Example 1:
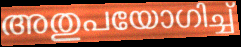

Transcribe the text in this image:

അതുപയോഗിച്ച്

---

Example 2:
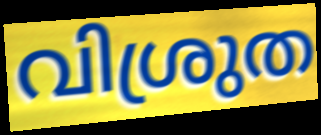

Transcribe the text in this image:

വിശ്രുത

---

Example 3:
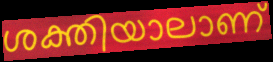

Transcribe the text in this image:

ശക്തിയാലാണ്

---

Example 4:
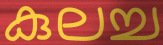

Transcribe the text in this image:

കുലച്ച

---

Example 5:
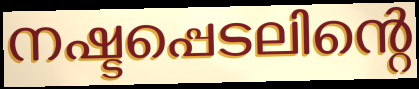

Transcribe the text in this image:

നഷ്ടപ്പെടലിന്റെ